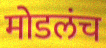
मोडलंच